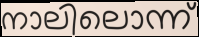
നാലിലൊന്ന്